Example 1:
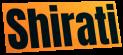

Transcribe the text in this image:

Shirati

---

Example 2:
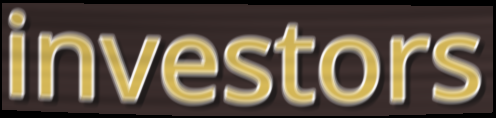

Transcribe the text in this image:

investors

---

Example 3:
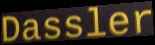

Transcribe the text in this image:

Dassler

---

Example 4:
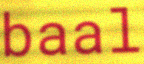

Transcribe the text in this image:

baal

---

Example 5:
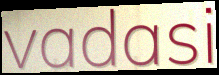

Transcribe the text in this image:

vadasi